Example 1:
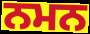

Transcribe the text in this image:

ਨਮਨ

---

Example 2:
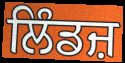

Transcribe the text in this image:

ਲਿੰਡਜ਼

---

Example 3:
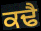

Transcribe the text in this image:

ਕਢੈ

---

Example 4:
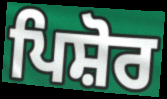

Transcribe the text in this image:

ਪਿਸ਼ੋਰ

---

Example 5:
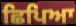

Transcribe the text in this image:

ਛਿਪਿਆ